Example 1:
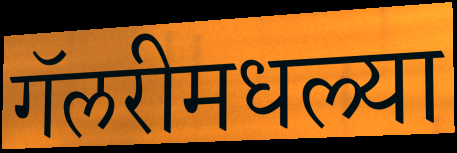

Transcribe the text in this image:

गॅलरीमधल्या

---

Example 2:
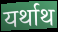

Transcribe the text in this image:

यर्थाथ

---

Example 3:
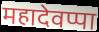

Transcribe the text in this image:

महादेवप्पा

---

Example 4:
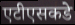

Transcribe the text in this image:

एटीएसकडे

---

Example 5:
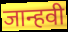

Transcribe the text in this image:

जान्हवी